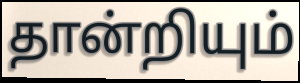
தான்றியும்